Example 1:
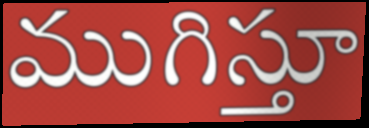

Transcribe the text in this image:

ముగిస్తూ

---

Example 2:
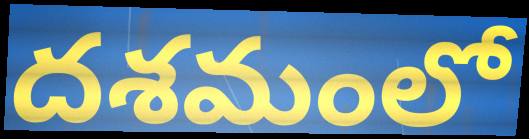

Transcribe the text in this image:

దశమంలో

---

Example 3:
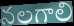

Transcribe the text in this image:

నలగాలి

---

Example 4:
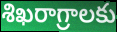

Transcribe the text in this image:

శిఖరాగ్రాలకు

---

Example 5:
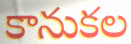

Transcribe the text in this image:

కానుకల